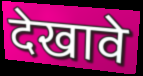
देखावे